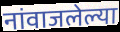
नांवाजलेल्या